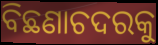
ବିଛଣାଚଦରକୁ